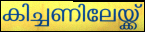
കിച്ചണിലേയ്ക്ക്